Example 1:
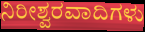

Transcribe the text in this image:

ನಿರೀಶ್ವರವಾದಿಗಳು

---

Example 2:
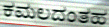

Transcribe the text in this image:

ಕಮಲದಂತಹ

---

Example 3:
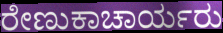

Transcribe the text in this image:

ರೇಣುಕಾಚಾರ್ಯರು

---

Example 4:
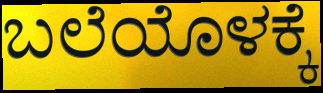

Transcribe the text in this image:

ಬಲೆಯೊಳಕ್ಕೆ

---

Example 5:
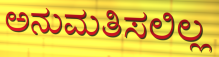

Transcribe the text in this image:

ಅನುಮತಿಸಲಿಲ್ಲ